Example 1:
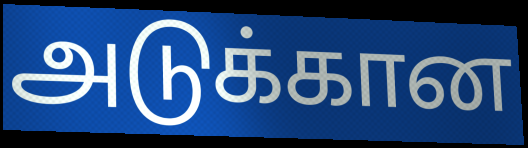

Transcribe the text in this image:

அடுக்கான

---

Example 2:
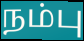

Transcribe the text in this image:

நம்பு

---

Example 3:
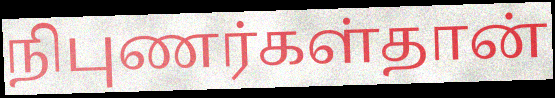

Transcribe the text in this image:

நிபுணர்கள்தான்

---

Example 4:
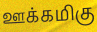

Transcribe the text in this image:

ஊக்கமிகு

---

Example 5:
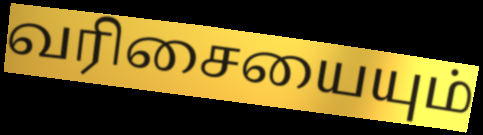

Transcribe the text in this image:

வரிசையையும்